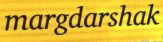
margdarshak